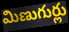
మిణుగుర్లు